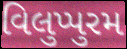
વિલુપ્પુરમ